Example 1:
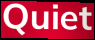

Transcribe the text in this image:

Quiet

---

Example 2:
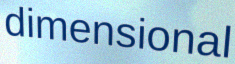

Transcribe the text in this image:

dimensional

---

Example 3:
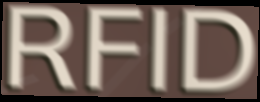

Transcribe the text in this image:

RFID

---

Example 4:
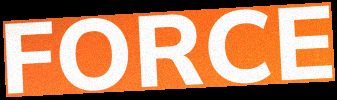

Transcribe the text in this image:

FORCE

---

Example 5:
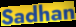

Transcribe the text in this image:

Sadhan